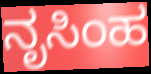
ನೃಸಿಂಹ